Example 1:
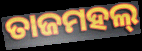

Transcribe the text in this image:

ତାଜମହଲ୍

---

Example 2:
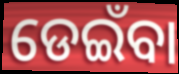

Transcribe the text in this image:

ଡେଇଁବା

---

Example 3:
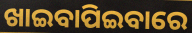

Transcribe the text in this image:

ଖାଇବାପିଇବାରେ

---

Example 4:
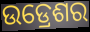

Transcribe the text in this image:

ଉଡ୍ରେଶର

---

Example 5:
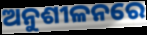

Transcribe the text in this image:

ଅନୁଶୀଳନରେ